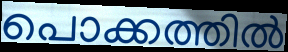
പൊക്കത്തിൽ